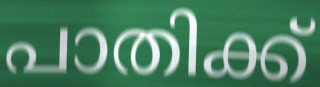
പാതിക്ക്